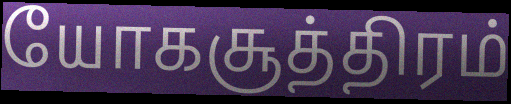
யோகசூத்திரம்